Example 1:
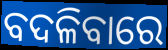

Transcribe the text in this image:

ବଦଳିବାରେ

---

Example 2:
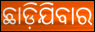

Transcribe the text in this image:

ଛାଡ଼ିଯିବାର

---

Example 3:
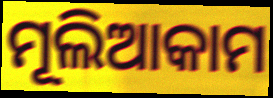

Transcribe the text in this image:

ମୂଲିଆକାମ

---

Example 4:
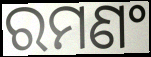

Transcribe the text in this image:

ରମଣଂ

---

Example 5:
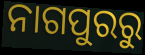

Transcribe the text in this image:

ନାଗପୁରରୁ